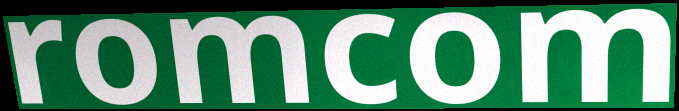
romcom